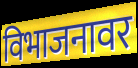
विभाजनावर